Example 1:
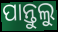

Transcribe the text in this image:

ପାନ୍ତୁଲୁ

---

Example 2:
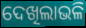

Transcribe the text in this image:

ଦେଖିଲାଭଳି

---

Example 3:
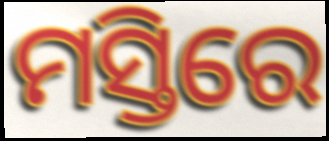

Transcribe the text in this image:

ମସ୍ତିରେ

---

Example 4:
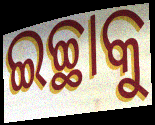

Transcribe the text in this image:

ଇଚ୍ଛାକୁ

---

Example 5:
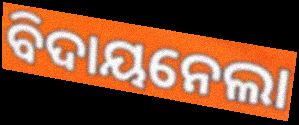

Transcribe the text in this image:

ବିଦାୟନେଲା